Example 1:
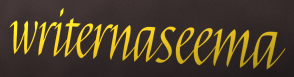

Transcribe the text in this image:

writernaseema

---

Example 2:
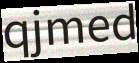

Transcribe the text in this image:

qjmed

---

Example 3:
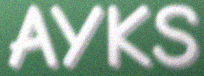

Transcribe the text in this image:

AYKS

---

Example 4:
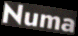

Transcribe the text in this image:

Numa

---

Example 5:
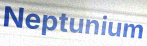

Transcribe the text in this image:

Neptunium